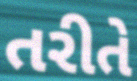
તરીતે